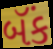
બૅંક